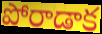
పోరాడాక